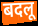
बदलू